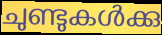
ചുണ്ടുകൾക്കു